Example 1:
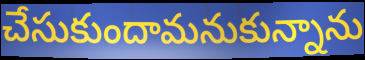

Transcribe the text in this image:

చేసుకుందామనుకున్నాను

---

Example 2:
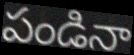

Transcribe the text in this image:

పండినా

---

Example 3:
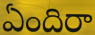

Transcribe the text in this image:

ఏందిరా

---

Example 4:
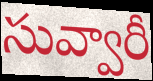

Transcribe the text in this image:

సువ్వారీ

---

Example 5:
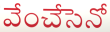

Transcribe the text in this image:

వేంచేసెనో